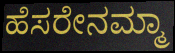
ಹೆಸರೇನಮ್ಮಾ